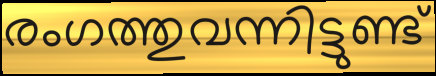
രംഗത്തുവന്നിട്ടുണ്ട്